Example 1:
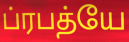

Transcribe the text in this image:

ப்ரபத்யே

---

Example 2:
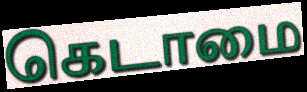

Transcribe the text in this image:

கெடாமை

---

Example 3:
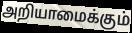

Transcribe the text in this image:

அறியாமைக்கும்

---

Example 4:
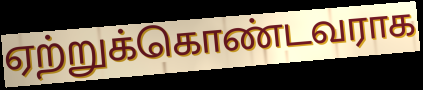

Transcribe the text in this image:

ஏற்றுக்கொண்டவராக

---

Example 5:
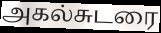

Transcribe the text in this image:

அகல்சுடரை